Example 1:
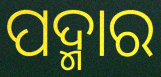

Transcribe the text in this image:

ପଦ୍ମାର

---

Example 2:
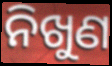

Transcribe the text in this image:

ନିଖୁଣ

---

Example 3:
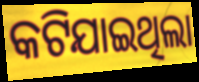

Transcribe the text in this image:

କଟିଯାଇଥିଲା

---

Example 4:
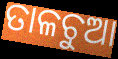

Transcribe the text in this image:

ତାଳଚୁଆ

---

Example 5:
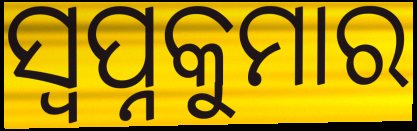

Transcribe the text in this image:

ସ୍ଵପ୍ନକୁମାର